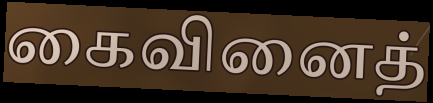
கைவினைத்